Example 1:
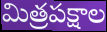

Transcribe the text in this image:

మిత్రపక్షాల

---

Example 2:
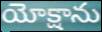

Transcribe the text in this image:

యోక్షాను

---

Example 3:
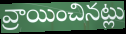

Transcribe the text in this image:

వ్రాయించినట్లు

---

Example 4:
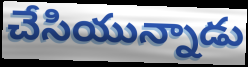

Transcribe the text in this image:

చేసియున్నాడు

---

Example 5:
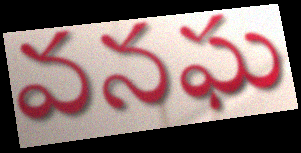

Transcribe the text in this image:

వనఘ